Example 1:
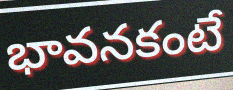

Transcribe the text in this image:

భావనకంటే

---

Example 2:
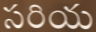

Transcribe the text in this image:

సరియ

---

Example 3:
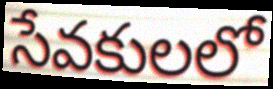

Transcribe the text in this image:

సేవకులలో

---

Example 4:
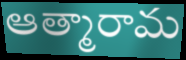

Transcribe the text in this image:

ఆత్మారామ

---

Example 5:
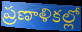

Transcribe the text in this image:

ప్రణాళికల్లో